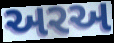
અરઅ